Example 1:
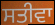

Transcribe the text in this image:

ਸਤੀਵਾ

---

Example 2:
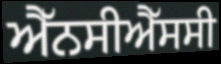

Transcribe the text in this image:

ਐੱਨਸੀਐੱਸਸੀ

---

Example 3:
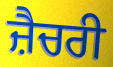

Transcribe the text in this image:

ਜ਼ੈਚਰੀ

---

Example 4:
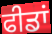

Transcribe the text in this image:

ਫੀਡਾਂ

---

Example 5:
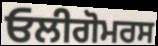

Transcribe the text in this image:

ਓਲੀਗੋਮਰਸ